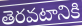
తెరవటానికి